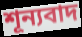
শূন্যবাদ